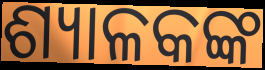
ଶ୍ୟାଳକଙ୍କ